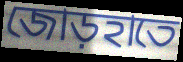
জোড়হাতে